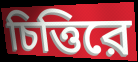
চিত্তিরে